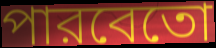
পারবেতো